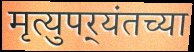
मृत्युपर्यंतच्या